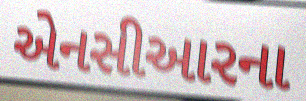
એનસીઆરના